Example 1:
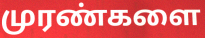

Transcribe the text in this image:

முரண்களை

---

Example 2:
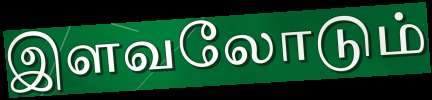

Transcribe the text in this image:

இளவலோடும்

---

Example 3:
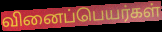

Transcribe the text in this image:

வினைப்பெயர்கள்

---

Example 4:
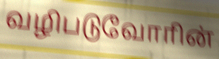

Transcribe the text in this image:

வழிபடுவோரின்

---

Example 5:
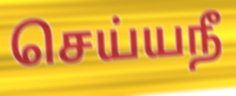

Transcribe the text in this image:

செய்யநீ